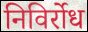
निविर्रोध